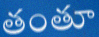
తంతూ